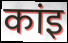
कांइ